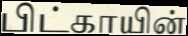
பிட்காயின்